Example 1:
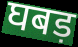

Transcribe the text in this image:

घबड़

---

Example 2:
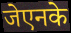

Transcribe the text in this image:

जेएनके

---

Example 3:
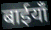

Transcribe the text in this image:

बाईयाँ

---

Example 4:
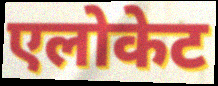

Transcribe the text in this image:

एलोकेट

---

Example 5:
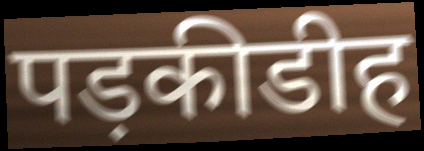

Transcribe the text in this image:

पड़कीडीह